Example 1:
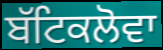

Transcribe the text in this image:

ਬੱਟਿਕਲੋਵਾ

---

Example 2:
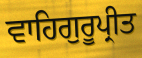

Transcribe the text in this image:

ਵਾਹਿਗੁਰੂਪ੍ਰੀਤ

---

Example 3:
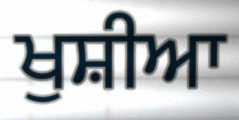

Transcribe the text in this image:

ਖੁਸ਼ੀਆ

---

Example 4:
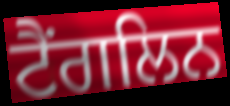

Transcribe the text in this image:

ਟੈਂਗਲਿਨ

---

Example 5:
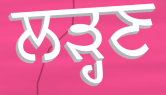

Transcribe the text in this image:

ਲੜ੍ਹਣ